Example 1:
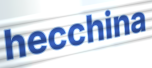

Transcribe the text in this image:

hecchina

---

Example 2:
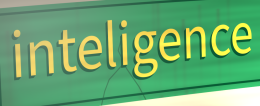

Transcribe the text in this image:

inteligence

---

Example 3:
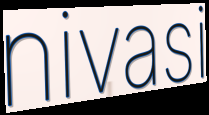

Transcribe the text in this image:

nivasi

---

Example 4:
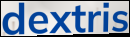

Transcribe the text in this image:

dextris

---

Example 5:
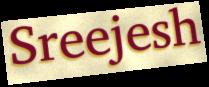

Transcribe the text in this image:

Sreejesh